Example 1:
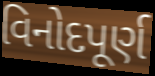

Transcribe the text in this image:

વિનોદપૂર્ણ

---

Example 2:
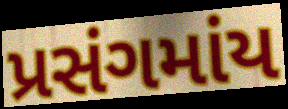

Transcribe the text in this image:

પ્રસંગમાંય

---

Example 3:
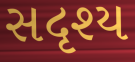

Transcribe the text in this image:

સદૃશ્ય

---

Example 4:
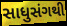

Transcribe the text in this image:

સાધુસંગથી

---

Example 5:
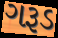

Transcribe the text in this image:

ગરૂડ